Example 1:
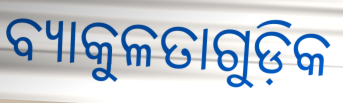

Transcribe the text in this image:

ବ୍ୟାକୁଳତାଗୁଡ଼ିକ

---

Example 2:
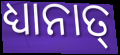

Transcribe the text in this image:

ଧ୍ୟାନାତ୍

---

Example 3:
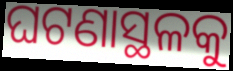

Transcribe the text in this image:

ଘଟଣାସ୍ଥଳକୁ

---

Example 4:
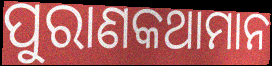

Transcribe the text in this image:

ପୁରାଣକଥାମାନ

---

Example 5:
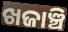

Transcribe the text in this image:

ଖଜାଞ୍ଚି